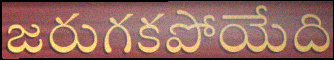
జరుగకపోయేది